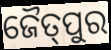
ଜୈତ୍‌ପୁର